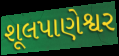
શૂલપાણેશ્વર